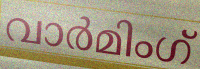
വാർമിംഗ്